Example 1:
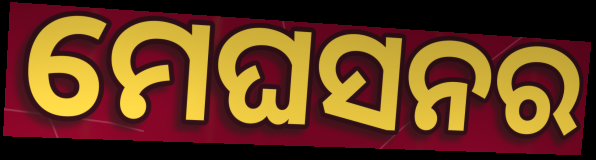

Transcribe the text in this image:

ମେଘସନର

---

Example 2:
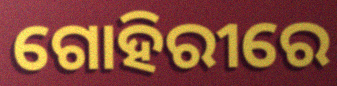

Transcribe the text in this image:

ଗୋହିରୀରେ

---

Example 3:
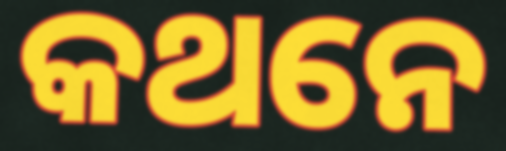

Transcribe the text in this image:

କଥନେ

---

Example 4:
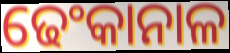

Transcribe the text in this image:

ଢେଂକାନାଳ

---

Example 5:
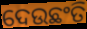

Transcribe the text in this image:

ଦେଉଛଂତି